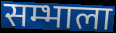
सम्भाला